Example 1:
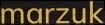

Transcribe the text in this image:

marzuk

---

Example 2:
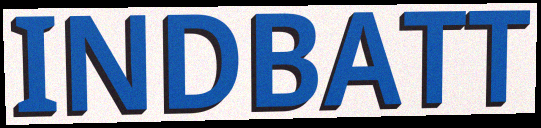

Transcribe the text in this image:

INDBATT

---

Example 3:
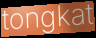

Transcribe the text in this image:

tongkat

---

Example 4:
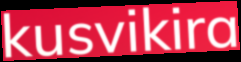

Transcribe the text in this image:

kusvikira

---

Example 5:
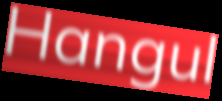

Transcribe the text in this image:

Hangul